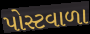
પોસ્ટવાળા